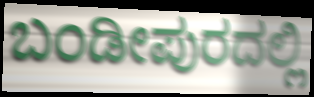
ಬಂಡೀಪುರದಲ್ಲಿ